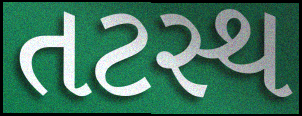
તટસ્થ